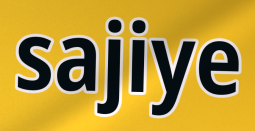
sajiye